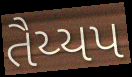
તૈય્યપ